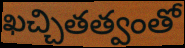
ఖచ్చితత్వంతో